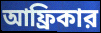
আফ্রিকার